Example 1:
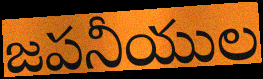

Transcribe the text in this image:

జపనీయుల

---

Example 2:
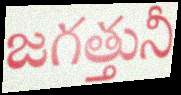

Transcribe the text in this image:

జగత్తునీ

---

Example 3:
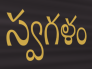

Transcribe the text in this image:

స్వగళం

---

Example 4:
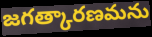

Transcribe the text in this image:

జగత్కారణమను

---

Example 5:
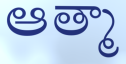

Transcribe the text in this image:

ఆత్మా